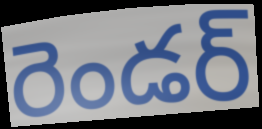
రెండర్